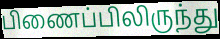
பிணைப்பிலிருந்து